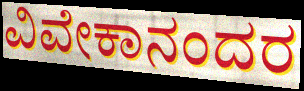
ವಿವೇಕಾನಂದರ